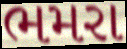
ભમરા